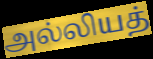
அல்லியத்